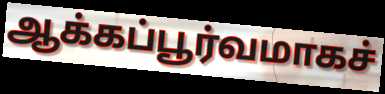
ஆக்கப்பூர்வமாகச்